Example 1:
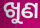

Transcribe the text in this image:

ଖୁଣ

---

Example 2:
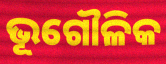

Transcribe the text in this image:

ଭୂଗୌଳିକ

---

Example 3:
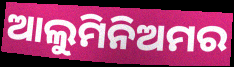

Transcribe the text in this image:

ଆଲୁମିନିଅମର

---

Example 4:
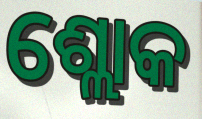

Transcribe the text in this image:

ଶ୍ଲୋକ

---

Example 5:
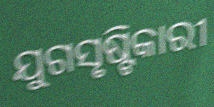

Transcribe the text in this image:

ଯୁଗସୃଷ୍ଟିକାରୀ